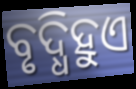
ବୃଦ୍ଧିହୁଏ